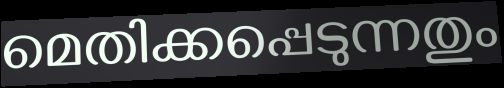
മെതിക്കപ്പെടുന്നതും